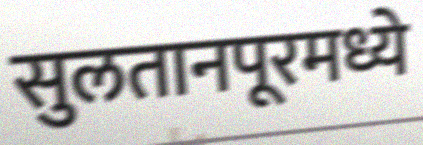
सुलतानपूरमध्ये